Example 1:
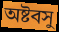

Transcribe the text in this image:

অষ্টবসু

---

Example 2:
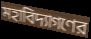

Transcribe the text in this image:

মহাবিদ্যাগণের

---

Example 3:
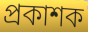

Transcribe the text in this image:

প্রকাশক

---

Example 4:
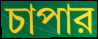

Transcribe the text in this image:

চাপার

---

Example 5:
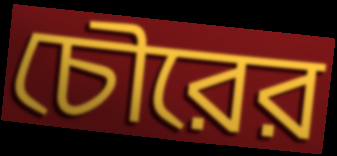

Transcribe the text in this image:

চৌরের